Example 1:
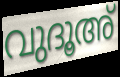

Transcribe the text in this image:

വുദൂഅ്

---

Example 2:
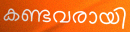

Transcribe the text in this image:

കണ്ടവരായി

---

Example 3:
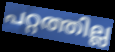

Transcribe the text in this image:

പറ്റത്തില്ല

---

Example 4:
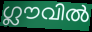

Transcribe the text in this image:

ഗ്ലൗവിൽ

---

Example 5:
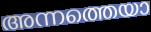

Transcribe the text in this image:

അന്നത്തെയാ